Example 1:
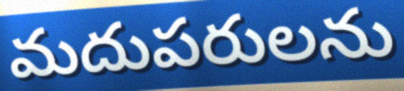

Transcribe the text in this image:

మదుపరులను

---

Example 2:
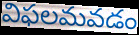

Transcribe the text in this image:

విఫలమవడం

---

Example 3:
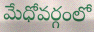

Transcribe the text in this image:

మేధోవర్గంలో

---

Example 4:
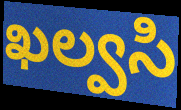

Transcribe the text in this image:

ఖల్వసి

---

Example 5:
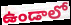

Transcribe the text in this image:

ఉండాలో